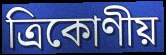
ত্ৰিকোণীয়